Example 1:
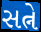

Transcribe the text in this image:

સત્ને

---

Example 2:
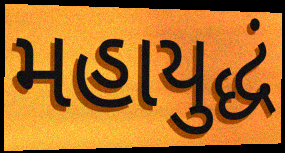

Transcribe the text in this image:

મહાયુદ્ધં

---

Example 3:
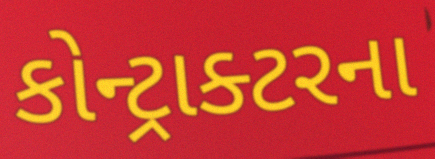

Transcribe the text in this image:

કોન્ટ્રાક્ટરના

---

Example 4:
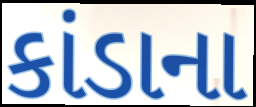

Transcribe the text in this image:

કાંડાના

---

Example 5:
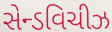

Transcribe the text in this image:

સેન્ડવિચીઝ